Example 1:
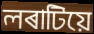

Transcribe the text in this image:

লৰাটিয়ে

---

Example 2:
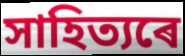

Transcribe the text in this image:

সাহিত্যৰে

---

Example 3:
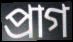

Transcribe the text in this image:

প্ৰাগ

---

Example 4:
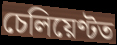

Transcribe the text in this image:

চেলিয়েণ্টত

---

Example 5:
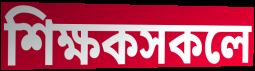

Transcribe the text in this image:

শিক্ষকসকলে